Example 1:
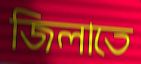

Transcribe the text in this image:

জিলাতে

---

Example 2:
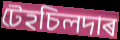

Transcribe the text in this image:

টেহচিলদাৰ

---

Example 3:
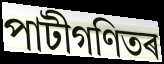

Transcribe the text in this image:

পাটীগণিতৰ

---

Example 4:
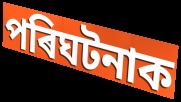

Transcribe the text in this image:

পৰিঘটনাক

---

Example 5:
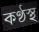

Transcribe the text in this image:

কণ্ঠস্থ